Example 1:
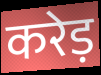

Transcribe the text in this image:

करेड़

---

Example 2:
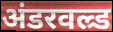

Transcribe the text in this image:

अंडरवल्र्ड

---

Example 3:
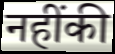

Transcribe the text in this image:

नहींकी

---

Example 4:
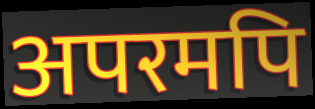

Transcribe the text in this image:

अपरमपि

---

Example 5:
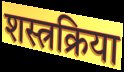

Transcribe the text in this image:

शस्त्रक्रिया